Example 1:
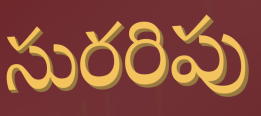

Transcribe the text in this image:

సురరిపు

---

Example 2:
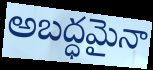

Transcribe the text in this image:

అబద్ధమైనా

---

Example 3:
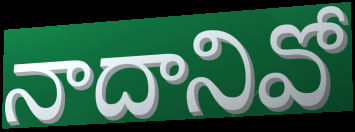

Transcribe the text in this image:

నాదానివో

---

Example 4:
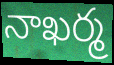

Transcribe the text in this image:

నాఖర్మ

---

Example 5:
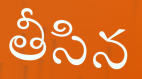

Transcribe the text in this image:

తీసిన